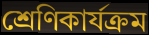
শ্রেণিকার্যক্রম